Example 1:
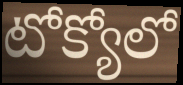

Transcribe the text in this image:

టోక్యోలో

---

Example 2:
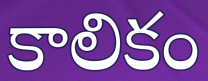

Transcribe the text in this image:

కాలికం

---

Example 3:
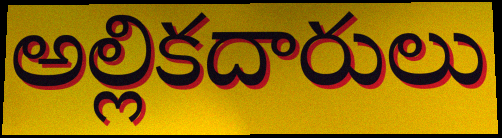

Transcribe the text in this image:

అల్లికదారులు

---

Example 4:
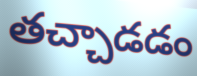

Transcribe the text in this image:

తచ్చాడడం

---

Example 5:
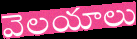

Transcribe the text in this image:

వెలయాలు